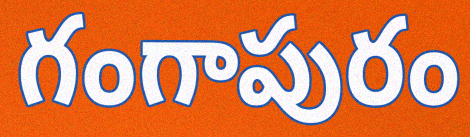
గంగాపురం